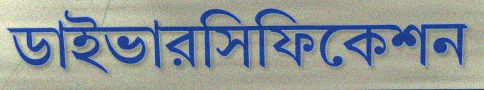
ডাইভারসিফিকেশন